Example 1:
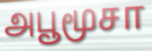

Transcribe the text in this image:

அபூமூசா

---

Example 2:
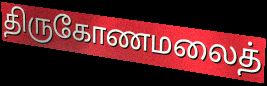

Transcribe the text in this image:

திருகோணமலைத்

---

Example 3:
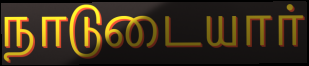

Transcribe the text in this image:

நாடுடையார்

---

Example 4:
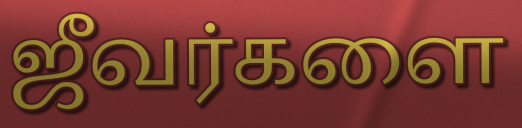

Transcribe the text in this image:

ஜீவர்களை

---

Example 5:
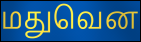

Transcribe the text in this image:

மதுவென